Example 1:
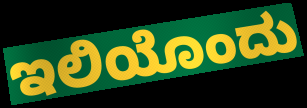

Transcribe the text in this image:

ಇಲಿಯೊಂದು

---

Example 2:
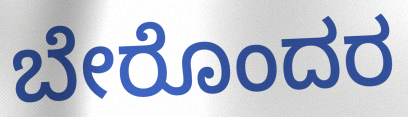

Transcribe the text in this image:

ಬೇರೊಂದರ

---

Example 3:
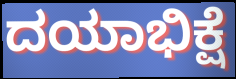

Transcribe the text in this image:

ದಯಾಭಿಕ್ಷೆ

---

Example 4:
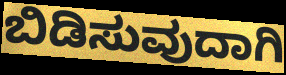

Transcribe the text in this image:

ಬಿಡಿಸುವುದಾಗಿ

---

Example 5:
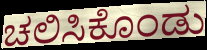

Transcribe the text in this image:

ಚಲಿಸಿಕೊಂಡು